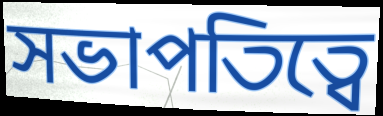
সভাপতিত্বে